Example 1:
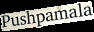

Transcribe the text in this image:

Pushpamala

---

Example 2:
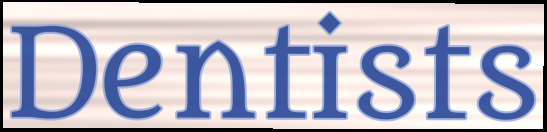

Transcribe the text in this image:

Dentists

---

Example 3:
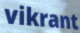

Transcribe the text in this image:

vikrant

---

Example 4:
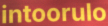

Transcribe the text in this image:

intoorulo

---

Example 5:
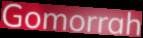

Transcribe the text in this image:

Gomorrah